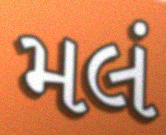
મલં